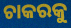
ଚାକରକୁ